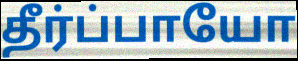
தீர்ப்பாயோ